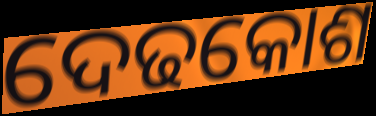
ଦେଢକୋଶ